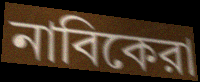
নাবিকেরা